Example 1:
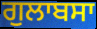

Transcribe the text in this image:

ਗੁਲਾਬਸਾ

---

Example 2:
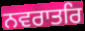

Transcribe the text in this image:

ਨਵਰਾਤਰਿ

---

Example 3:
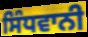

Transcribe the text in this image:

ਸਿੰਧਵਾਨੀ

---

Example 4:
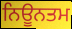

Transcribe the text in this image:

ਨਿਊਨਤਮ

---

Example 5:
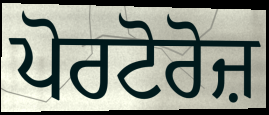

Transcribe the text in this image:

ਪੋਰਟੋਰੋਜ਼